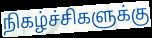
நிகழ்ச்சிகளுக்கு